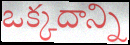
ఒక్కదాన్ని